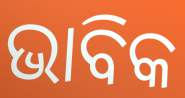
ଭାବିକ